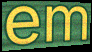
em